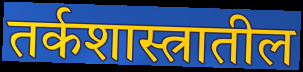
तर्कशास्त्रातील